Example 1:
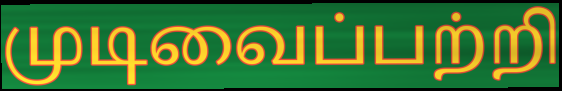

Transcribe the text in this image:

முடிவைப்பற்றி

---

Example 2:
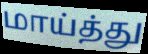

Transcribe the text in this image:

மாய்த்து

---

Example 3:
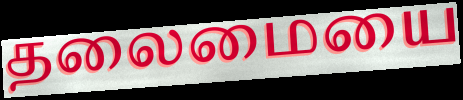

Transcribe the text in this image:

தலைமையை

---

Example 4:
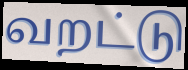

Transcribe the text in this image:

வறட்டு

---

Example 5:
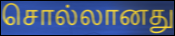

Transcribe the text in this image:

சொல்லானது